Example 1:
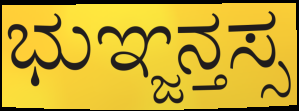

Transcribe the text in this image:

ಭುಞ್ಜನ್ತಸ್ಸ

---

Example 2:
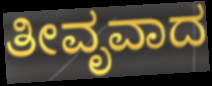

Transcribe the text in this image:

ತೀವೃವಾದ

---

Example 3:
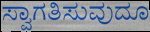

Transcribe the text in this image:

ಸ್ವಾಗತಿಸುವುದೂ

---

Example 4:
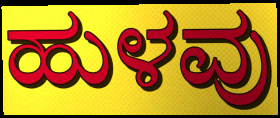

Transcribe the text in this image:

ಹುಳವು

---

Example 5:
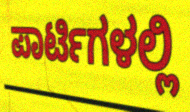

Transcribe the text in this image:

ಪಾರ್ಟಿಗಳಲ್ಲಿ